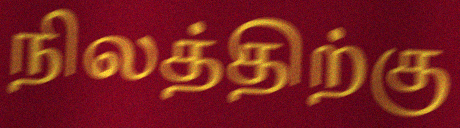
நிலத்திற்கு